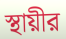
স্থায়ীর